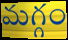
మగ్గం